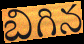
బిగిన